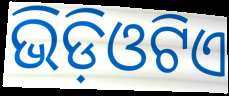
ଭିଡ଼ିଓଟିଏ